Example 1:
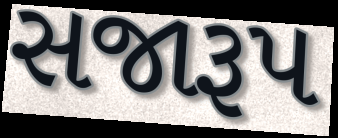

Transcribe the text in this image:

સજારૂપ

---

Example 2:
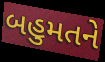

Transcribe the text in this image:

બહુમતને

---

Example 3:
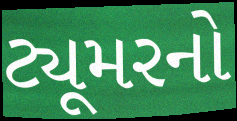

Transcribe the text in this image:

ટ્યૂમરનો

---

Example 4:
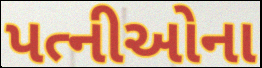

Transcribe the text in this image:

પત્નીઓના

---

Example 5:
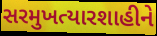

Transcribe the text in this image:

સરમુખત્યારશાહીને